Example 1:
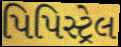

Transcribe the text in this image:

પિપિસ્ટ્રેલ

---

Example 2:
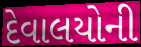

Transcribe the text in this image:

દેવાલયોની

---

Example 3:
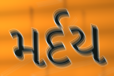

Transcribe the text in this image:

મર્દય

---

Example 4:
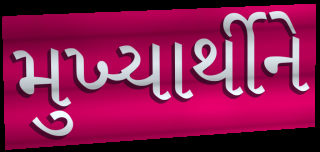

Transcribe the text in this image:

મુખ્યાર્થીને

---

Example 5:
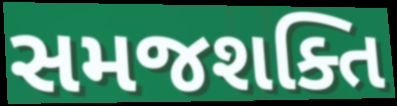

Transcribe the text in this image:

સમજશક્તિ